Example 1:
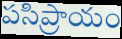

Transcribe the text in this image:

పసిప్రాయం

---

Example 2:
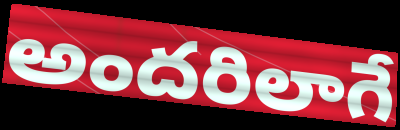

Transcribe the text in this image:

అందరిలాగే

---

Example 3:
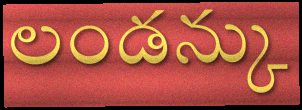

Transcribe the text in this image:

లండన్కు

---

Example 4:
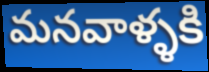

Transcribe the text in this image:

మనవాళ్ళకి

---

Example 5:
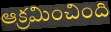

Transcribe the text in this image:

ఆక్రమించింది